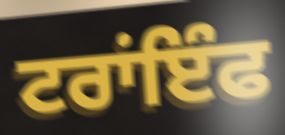
ਟਰਾਂਇੰਫ